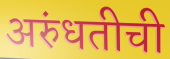
अरुंधतीची